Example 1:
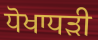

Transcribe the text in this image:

ਧੋਖਾਧਡ਼ੀ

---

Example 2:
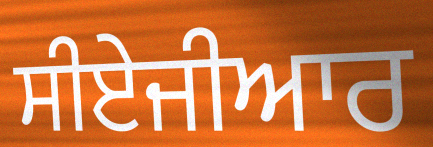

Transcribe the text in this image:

ਸੀਏਜੀਆਰ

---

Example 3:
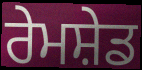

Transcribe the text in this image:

ਰੇਮਸ਼ੇਡ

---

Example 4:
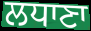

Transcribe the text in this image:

ਲਧਾਣਾ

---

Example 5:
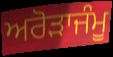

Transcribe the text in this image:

ਅਰੋੜਾਜੰਮੂ